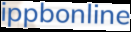
ippbonline